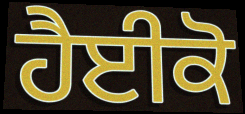
ਹੈਈਕੋ